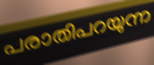
പരാതിപറയുന്ന